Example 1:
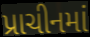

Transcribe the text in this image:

પ્રાચીનમાં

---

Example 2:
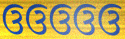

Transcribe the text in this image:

ઉઉઉઉઉ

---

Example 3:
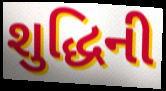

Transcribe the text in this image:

શુદ્ધિની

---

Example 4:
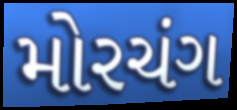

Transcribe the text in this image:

મોરચંગ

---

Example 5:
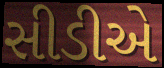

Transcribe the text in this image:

સીડીએ